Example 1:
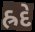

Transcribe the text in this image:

હ્રદે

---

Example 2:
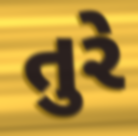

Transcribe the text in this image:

તુરે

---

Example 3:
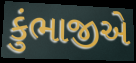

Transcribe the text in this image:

કુંભાજીએ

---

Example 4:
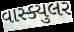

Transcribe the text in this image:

વાસ્ક્યુલર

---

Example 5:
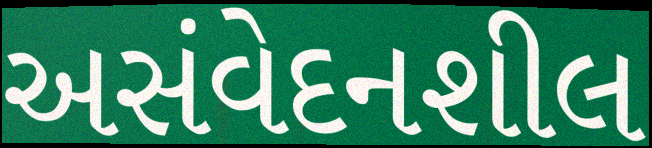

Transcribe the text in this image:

અસંવેદનશીલ